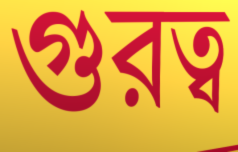
গুরত্ব